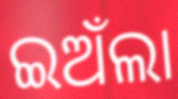
ଇଅଁଲା